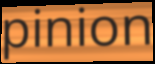
pinion